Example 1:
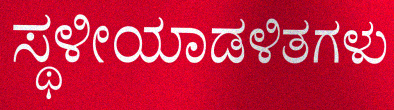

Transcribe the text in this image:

ಸ್ಥಳೀಯಾಡಳಿತಗಳು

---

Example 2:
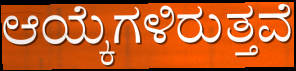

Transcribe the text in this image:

ಆಯ್ಕೆಗಳಿರುತ್ತವೆ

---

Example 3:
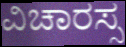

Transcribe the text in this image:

ವಿಚಾರಸ್ಸ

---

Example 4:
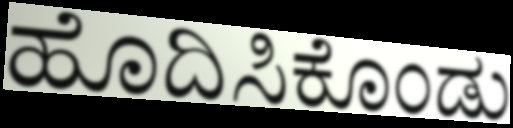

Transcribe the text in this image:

ಹೊದಿಸಿಕೊಂಡು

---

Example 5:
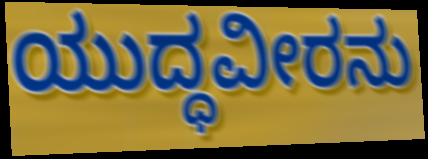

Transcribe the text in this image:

ಯುದ್ಧವೀರನು